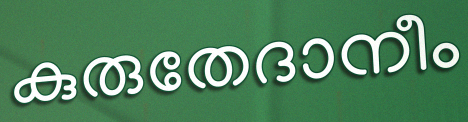
കുരുതേദാനീം